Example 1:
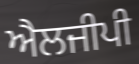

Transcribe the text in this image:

ਐਲਜੀਪੀ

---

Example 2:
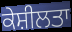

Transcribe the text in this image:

ਕੇਸ਼ੀਲਤਾ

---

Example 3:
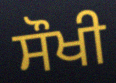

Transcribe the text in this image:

ਸੌਖੀ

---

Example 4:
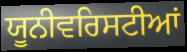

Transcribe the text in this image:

ਯੂਨੀਵਰਿਸਟੀਆਂ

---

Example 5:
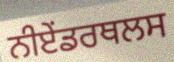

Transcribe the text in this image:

ਨੀਏਂਡਰਥਲਸ